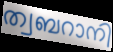
ത്വബറാനി